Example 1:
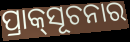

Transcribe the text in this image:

ପ୍ରାକ୍‌ସୂଚନାର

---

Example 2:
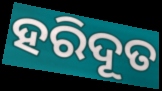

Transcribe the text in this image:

ହରିଦୂତ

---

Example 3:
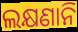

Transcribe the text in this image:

ଲକ୍ଷଣାନି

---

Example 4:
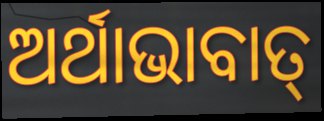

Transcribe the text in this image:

ଅର୍ଥାଭାବାତ୍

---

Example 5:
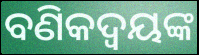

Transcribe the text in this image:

ବଣିକଦ୍ଵୟଙ୍କ